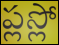
ప్లస్లో